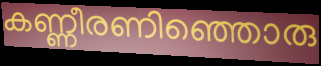
കണ്ണീരണിഞ്ഞൊരു